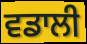
ਵਡਾਲੀ